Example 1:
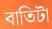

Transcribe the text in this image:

বাতিটা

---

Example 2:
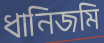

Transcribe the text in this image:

ধানিজমি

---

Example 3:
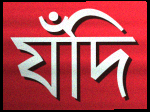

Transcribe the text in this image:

যঁদি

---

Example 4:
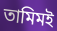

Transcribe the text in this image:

তামিমই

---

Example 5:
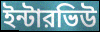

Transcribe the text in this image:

ইন্টারভিউ